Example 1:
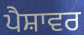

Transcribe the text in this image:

ਪੈਸ਼ਾਵਰ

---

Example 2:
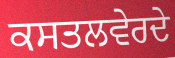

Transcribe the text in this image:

ਕਸਤਲਵੇਰਦੇ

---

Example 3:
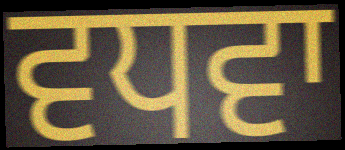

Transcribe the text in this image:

ਵਧਵਾ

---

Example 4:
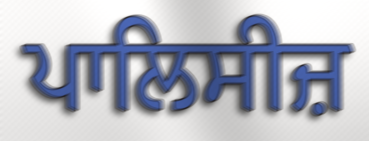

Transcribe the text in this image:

ਪਾਲਿਸੀਜ਼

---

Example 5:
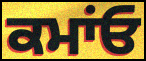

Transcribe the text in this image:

ਕਮਾਂਓ